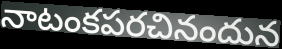
నాటంకపరచినందున